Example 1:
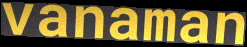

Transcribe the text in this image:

vanaman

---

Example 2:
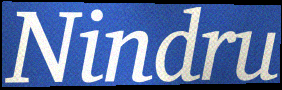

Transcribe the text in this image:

Nindru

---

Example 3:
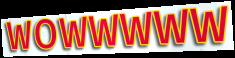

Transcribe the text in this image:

wowwwww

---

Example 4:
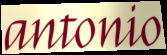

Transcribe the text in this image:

antonio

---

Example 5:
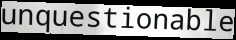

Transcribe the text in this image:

unquestionable